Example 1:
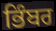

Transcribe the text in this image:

ਭਿੰਬਰ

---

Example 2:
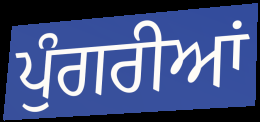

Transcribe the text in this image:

ਪੁੰਗਰੀਆਂ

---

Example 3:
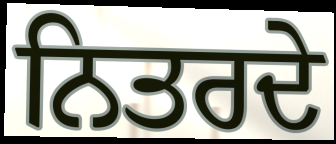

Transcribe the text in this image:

ਨਿਤਰਦੇ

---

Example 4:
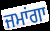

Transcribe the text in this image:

ਜਮਾਂਗਾ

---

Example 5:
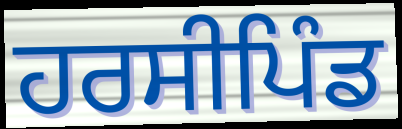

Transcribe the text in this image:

ਹਰਸੀਪਿੰਡ